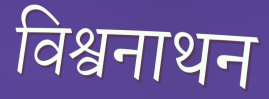
विश्वनाथन